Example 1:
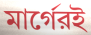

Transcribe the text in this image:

মার্গেরই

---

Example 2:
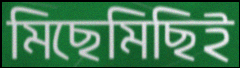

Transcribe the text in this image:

মিছেমিছিই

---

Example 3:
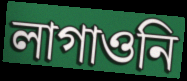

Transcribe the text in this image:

লাগাওনি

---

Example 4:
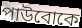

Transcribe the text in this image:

পাউবোকে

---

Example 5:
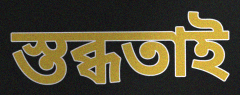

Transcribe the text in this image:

স্তব্ধতাই